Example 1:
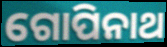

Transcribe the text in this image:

ଗୋପିନାଥ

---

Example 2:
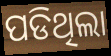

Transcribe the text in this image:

ପଡିଥିଲା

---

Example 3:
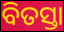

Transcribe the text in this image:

ବିତସ୍ତା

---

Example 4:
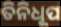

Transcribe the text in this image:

ତିନିଧୂପ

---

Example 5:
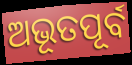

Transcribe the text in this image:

ଅଭୂତପୂର୍ବ